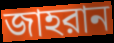
জাহরান